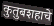
कुतुबशहाचे